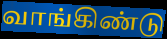
வாங்கிண்டு